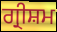
ਗ੍ਰੀਸ਼ਮ